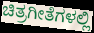
ಚಿತ್ರಗೀತೆಗಳಲ್ಲಿ